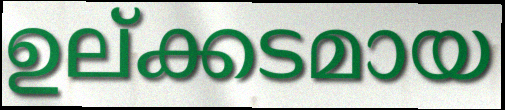
ഉല്ക്കടമായ